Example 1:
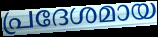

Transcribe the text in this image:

പ്രദേശമായ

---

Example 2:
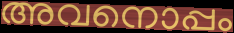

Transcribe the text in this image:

അവനൊപ്പം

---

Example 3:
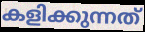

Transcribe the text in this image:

കളിക്കുന്നത്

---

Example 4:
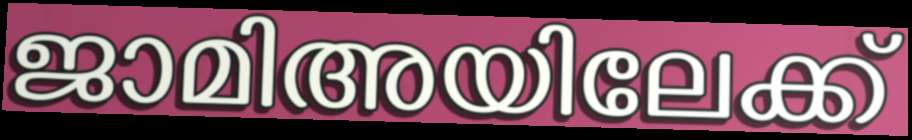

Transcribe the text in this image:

ജാമിഅയിലേക്ക്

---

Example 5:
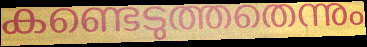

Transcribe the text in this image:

കണ്ടെടുത്തതെന്നും